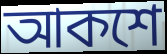
আকশে